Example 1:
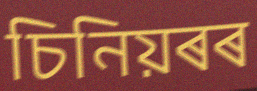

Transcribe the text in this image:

চিনিয়ৰৰ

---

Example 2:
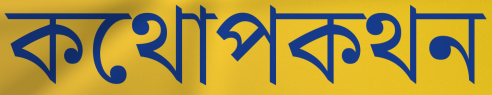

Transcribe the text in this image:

কথোপকথন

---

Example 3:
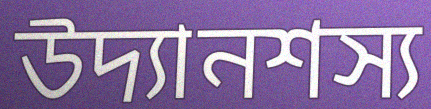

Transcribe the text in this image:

উদ্যানশস্য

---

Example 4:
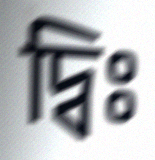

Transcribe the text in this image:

দ্বিঃ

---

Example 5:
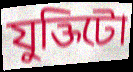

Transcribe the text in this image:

যুক্তিটো